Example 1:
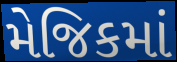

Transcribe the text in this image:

મેજિકમાં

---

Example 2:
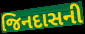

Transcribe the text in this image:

જિનદાસની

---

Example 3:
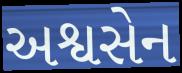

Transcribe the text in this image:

અશ્વસેન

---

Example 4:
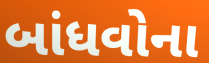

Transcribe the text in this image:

બાંધવોના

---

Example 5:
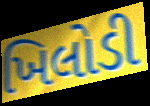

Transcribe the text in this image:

ખિલોડી